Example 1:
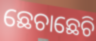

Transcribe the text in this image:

ଛେଚାଛେଚି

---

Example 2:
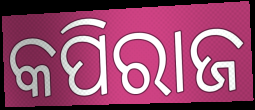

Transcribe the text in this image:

କପିରାଜ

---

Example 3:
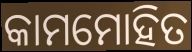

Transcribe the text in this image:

କାମମୋହିତ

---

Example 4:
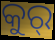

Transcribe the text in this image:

କୁର୍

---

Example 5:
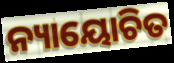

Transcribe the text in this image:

ନ୍ୟାୟୋଚିତ